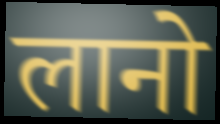
लानो